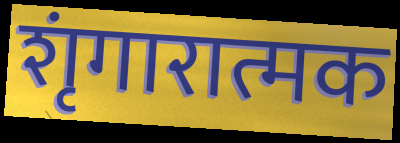
शृंगारात्मक